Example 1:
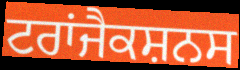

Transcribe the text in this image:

ਟਰਾਂਜੈਕਸ਼ਨਸ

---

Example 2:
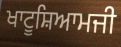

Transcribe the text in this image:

ਖਾਟੂਸ਼ਿਆਮਜੀ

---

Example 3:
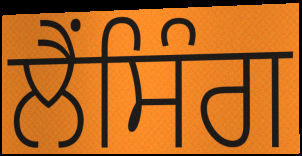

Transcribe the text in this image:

ਲੈਂਸਿੰਗ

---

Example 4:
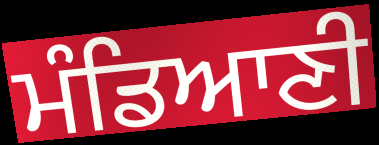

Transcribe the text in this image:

ਮੰਡਿਆਣੀ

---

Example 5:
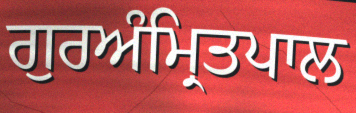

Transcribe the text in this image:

ਗੁਰਅੰਮ੍ਰਿਤਪਾਲ